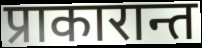
प्राकारान्त